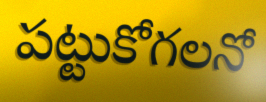
పట్టుకోగలనో